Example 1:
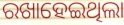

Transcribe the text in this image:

ରଖାହେଇଥିଲା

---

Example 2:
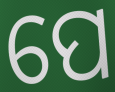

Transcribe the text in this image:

ପେ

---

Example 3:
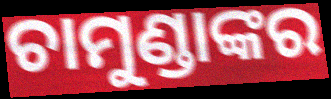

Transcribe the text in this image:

ଚାମୁଣ୍ଡାଙ୍କର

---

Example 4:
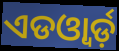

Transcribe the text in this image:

ଏଡଓ୍ବାର୍ଡ଼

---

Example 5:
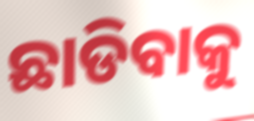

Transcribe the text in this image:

ଛାଡିବାକୁ